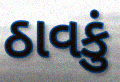
ઠાવકું